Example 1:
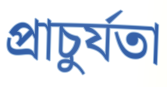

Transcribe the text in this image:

প্রাচুর্যতা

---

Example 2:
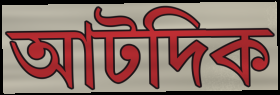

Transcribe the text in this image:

আটদিক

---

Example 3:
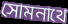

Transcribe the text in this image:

সোমনাথে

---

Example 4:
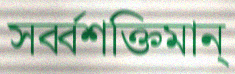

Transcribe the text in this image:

সর্ব্বশক্তিমান্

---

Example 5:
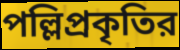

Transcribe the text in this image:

পল্লিপ্রকৃতির